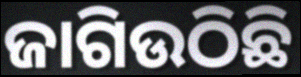
ଜାଗିଉଠିଛି